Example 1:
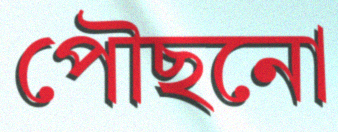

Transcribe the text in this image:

পৌছনো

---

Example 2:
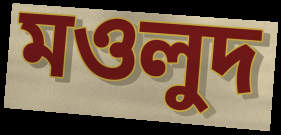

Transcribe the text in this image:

মওলুদ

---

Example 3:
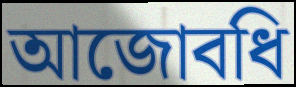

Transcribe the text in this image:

আজোবধি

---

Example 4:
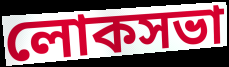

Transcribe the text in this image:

লোকসভা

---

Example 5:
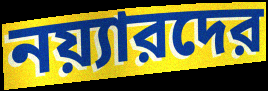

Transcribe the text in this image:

নয়্যারদের